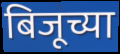
बिजूच्या